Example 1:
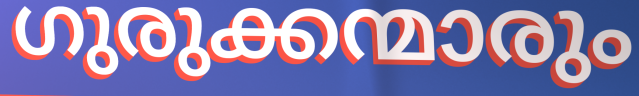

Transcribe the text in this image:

ഗുരുക്കന്മാരും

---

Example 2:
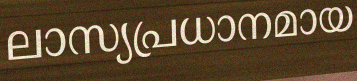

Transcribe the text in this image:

ലാസ്യപ്രധാനമായ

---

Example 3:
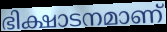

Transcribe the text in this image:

ഭിക്ഷാടനമാണ്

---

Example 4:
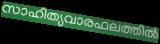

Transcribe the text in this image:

സാഹിത്യവാരഫലത്തിൽ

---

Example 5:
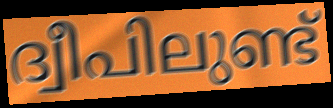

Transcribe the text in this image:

ദ്വീപിലുണ്ട്